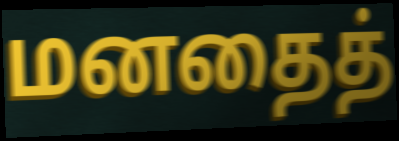
மனதைத்